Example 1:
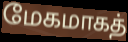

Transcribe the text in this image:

மேகமாகத்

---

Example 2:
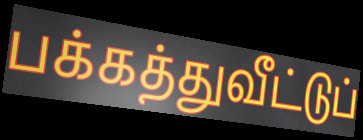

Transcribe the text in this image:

பக்கத்துவீட்டுப்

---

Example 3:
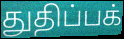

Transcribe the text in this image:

துதிப்பக்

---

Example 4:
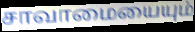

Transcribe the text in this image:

சாவாமையையும்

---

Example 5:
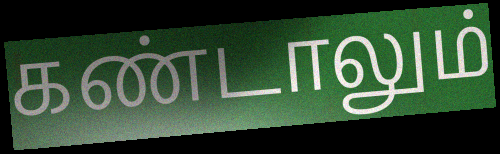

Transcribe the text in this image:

கண்டாலும்